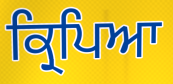
ਕ੍ਰਿਪਿਆ